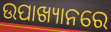
ଉପାଖ୍ୟାନରେ